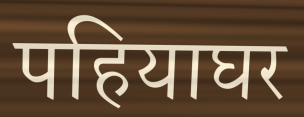
पहियाघर